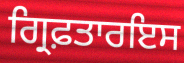
ਗ੍ਰਿਫ਼ਤਾਰਇਸ